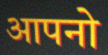
आपनो